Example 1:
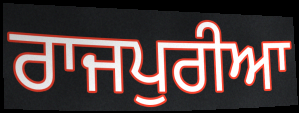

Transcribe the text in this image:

ਰਾਜਪੁਰੀਆ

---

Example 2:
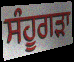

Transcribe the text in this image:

ਸੰਹੂਗੜਾ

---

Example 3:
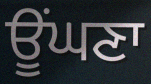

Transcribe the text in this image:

ਊਂਘਣਾ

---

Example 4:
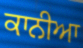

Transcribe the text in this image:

ਕਾਨੀਆ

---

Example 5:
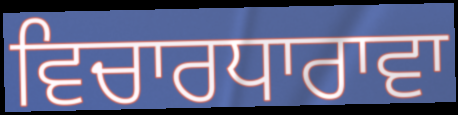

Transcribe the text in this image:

ਵਿਚਾਰਧਾਰਾਵਾ